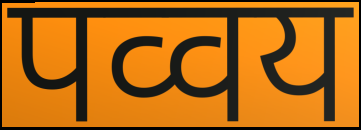
पव्वय